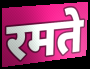
रमते